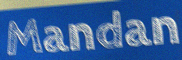
Mandan